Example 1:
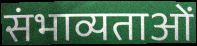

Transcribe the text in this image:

संभाव्यताओं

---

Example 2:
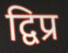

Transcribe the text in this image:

द्विप्र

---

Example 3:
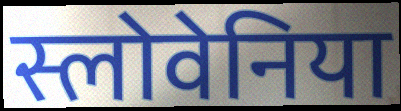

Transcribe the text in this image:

स्लोवेनिया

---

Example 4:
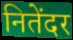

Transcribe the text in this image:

नितेंदर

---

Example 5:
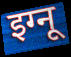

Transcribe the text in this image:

इग्नू